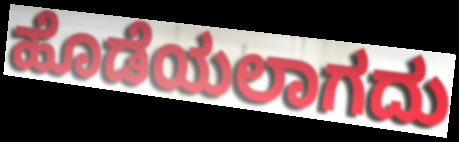
ಹೊಡೆಯಲಾಗದು